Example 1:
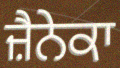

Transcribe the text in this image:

ਜ਼ੈਨੇਕਾ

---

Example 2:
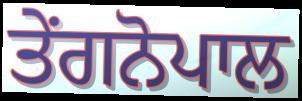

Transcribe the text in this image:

ਤੇਂਗਨੋਪਾਲ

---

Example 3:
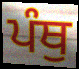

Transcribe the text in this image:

ਪੰਥੁ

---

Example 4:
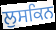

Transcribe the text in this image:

ਲੁਸਕਿਨ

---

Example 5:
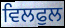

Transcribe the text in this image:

ਵਿਲਫੁਲ